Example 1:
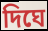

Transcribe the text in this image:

দিঘে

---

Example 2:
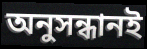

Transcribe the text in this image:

অনুসন্ধানই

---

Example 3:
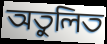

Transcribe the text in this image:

অতুলিত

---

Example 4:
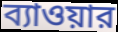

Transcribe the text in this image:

ব্যাওয়ার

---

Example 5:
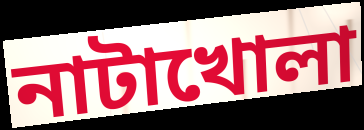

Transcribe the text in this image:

নাটাখোলা